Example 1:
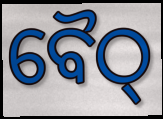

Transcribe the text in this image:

ବୈଠ୍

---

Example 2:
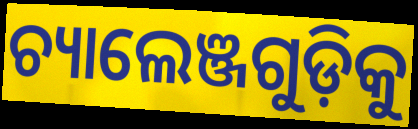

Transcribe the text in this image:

ଚ୍ୟାଲେଞ୍ଜଗୁଡ଼ିକୁ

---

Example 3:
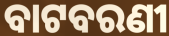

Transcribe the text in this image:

ବାଟବରଣୀ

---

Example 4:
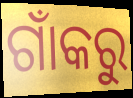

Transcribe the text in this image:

ଗାଁକରୁ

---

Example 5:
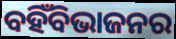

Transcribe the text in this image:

ବହିଁବିଭାଜନର